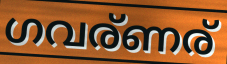
ഗവര്ണര്